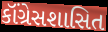
કૉંગ્રેસશાસિત